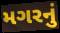
મગરનું